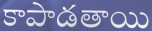
కాపాడతాయి